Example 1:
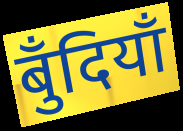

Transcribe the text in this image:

बुँदियाँ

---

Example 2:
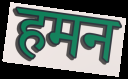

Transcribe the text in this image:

हमन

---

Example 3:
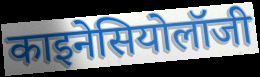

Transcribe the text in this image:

काइनेसियोलॉजी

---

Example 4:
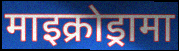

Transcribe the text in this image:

माइक्रोड्रामा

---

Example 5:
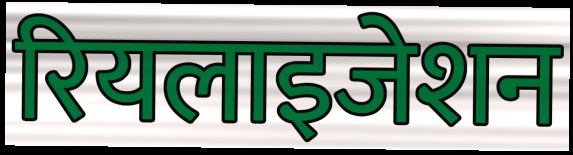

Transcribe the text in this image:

रियलाइजेशन